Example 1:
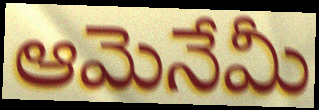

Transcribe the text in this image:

ఆమెనేమీ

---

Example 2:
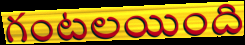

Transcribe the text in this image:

గంటలయింది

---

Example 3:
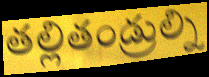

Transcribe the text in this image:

తల్లితండ్రుల్ని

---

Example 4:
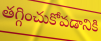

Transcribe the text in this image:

తగ్గించుకోవడానికి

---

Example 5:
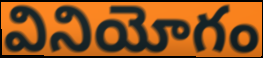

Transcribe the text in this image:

వినియోగం